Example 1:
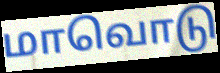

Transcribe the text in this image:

மாவொடு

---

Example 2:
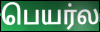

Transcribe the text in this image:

பெயர்ல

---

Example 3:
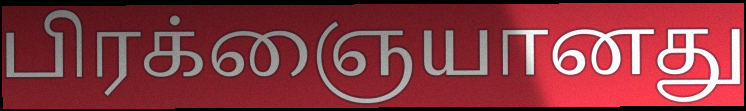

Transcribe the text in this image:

பிரக்ஞையானது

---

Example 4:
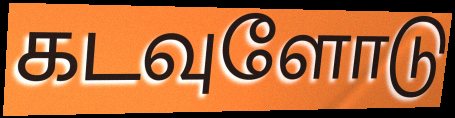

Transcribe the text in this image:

கடவுளோடு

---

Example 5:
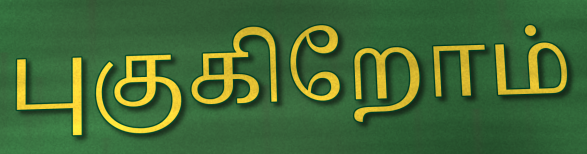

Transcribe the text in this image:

புகுகிறோம்